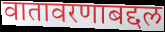
वातावरणाबद्दल